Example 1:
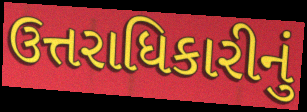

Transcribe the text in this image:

ઉત્તરાધિકારીનું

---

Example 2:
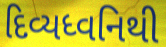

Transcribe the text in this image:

દિવ્યધ્વનિથી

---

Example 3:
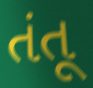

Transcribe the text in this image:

તંતૂ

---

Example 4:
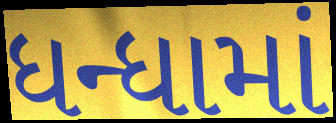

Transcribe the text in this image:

ધન્ધામાં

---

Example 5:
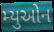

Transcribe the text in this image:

મ્યુઓન